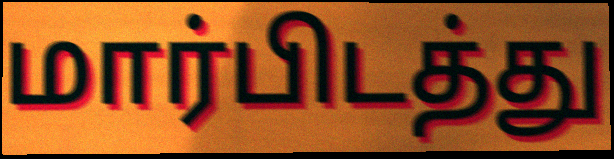
மார்பிடத்து